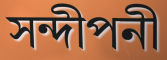
সন্দীপনী